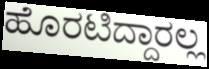
ಹೊರಟಿದ್ದಾರಲ್ಲ